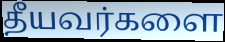
தீயவர்களை